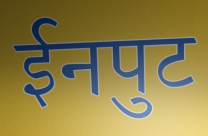
ईनपुट